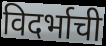
विदर्भाची